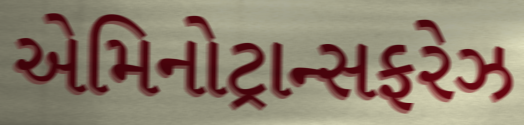
એમિનોટ્રાન્સફરેઝ